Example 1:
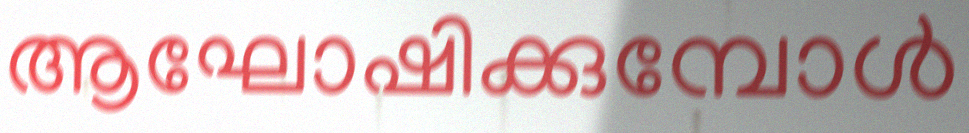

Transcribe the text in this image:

ആഘോഷിക്കുമ്പോൾ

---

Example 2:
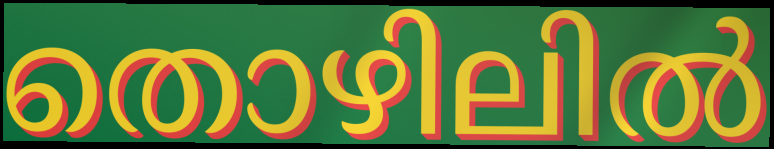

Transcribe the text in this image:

തൊഴിലിൽ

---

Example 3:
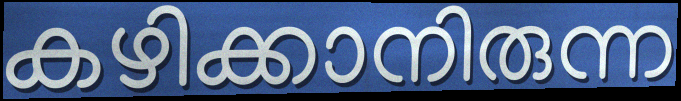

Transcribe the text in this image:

കഴിക്കാനിരുന്ന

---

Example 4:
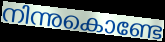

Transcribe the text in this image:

നിന്നുകൊണ്ടേ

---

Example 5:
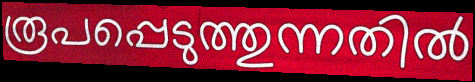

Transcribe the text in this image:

രൂപപ്പെടുത്തുന്നതിൽ